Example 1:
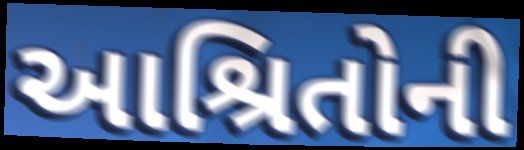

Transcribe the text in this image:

આશ્રિતોની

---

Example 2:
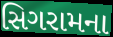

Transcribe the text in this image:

સિગરામના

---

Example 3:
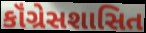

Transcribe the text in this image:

કૉંગ્રેસશાસિત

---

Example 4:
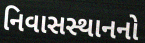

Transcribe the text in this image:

નિવાસસ્થાનનો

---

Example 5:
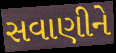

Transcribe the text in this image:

સવાણીને